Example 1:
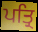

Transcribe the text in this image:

ਪਤ੍ਰਿ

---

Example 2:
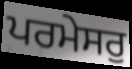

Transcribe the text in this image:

ਪਰਮੇਸਰੁ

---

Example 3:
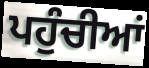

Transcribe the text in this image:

ਪਹੁੰਚੀਆਂ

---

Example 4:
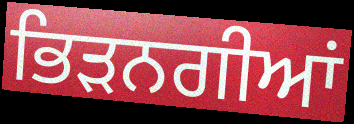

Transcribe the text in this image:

ਭਿੜਨਗੀਆਂ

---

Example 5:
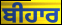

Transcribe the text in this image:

ਬੀਹਾਰ